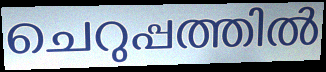
ചെറുപ്പത്തിൽ